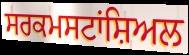
ਸਰਕਮਸਟਾਂਸ਼ਿਅਲ